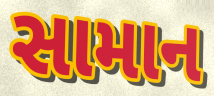
સામાન